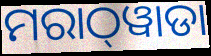
ମରାଠ୍‌ୱାଡା